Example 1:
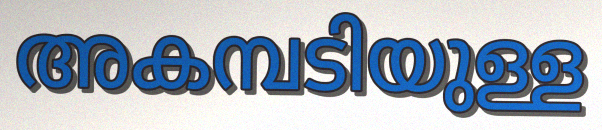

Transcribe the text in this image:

അകമ്പടിയുള്ള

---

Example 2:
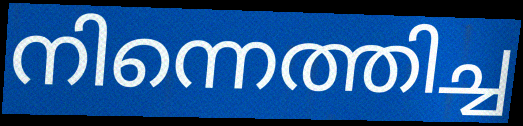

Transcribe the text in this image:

നിന്നെത്തിച്ച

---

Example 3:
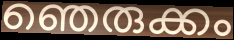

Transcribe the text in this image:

ഞെരുക്കം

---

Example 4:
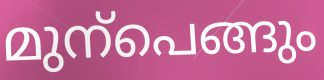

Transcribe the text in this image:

മുന്പെങ്ങും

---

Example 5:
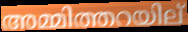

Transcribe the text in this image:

അമ്മിത്തറയില്